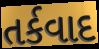
તર્કવાદ